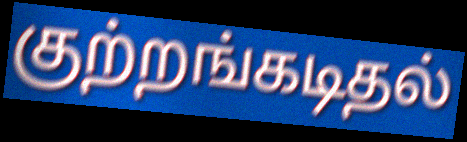
குற்றங்கடிதல்